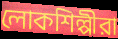
লোকশিল্পীরা